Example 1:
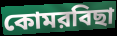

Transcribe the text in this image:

কোমরবিছা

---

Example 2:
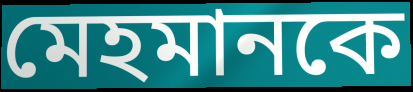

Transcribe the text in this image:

মেহমানকে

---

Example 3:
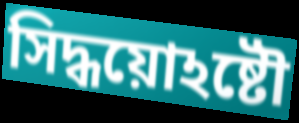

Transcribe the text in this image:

সিদ্ধয়োঽষ্টৌ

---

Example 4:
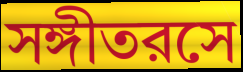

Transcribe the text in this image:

সঙ্গীতরসে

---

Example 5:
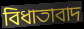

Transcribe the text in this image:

বিধাতাবাদ